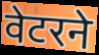
वेटरने